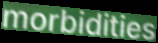
morbidities